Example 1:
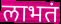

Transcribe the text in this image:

लाभतं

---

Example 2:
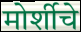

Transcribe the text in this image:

मोर्शीचे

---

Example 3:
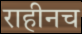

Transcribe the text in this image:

राहीनच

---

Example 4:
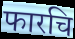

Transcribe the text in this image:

फारचि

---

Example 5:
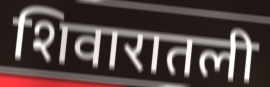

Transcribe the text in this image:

शिवारातली